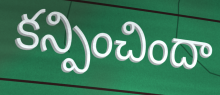
కన్పించిందా